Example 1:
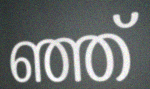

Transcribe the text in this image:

ഞ്ഞ്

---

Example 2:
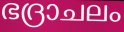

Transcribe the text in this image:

ഭദ്രാചലം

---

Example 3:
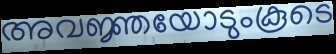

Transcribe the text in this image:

അവജ്ഞയോടുംകൂടെ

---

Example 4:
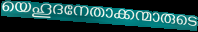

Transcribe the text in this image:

യെഹൂദനേതാക്കന്മാരുടെ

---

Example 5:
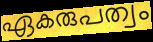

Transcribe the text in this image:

ഏകരുപത്വം